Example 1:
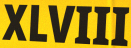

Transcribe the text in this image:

XLVIII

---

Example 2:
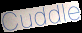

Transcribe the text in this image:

Cuddle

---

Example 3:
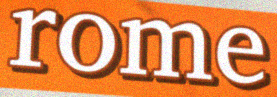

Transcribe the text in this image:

rome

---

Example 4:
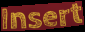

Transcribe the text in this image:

Insert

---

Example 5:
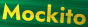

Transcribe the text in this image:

Mockito